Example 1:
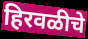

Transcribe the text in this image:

हिरवळीचे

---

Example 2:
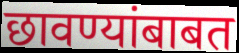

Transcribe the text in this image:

छावण्यांबाबत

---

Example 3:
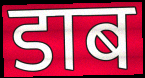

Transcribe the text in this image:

डाब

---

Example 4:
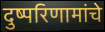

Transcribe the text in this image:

दुष्परिणामांचे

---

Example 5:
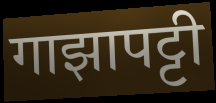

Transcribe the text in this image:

गाझापट्टी